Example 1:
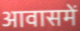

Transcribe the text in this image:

आवासमें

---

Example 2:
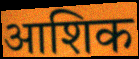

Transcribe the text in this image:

आशिक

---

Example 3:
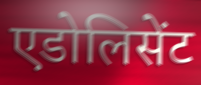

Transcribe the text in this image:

एडोलिसेंट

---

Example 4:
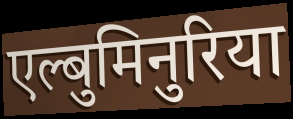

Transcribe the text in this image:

एल्बुमिनुरिया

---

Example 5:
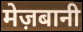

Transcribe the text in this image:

मेज़बानी